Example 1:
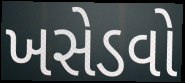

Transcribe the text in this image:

ખસેડવો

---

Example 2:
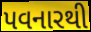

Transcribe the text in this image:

પવનારથી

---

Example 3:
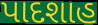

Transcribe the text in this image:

પાદશાહ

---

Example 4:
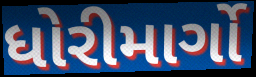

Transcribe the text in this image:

ધોરીમાર્ગો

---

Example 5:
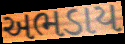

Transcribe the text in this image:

અભડાય